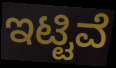
ಇಟ್ಟಿವೆ